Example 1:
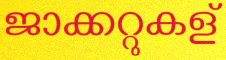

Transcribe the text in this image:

ജാക്കറ്റുകള്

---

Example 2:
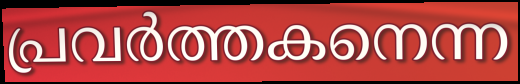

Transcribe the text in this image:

പ്രവർത്തകനെന്ന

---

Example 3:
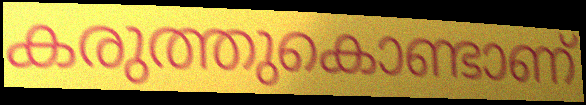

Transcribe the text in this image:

കരുത്തുകൊണ്ടാണ്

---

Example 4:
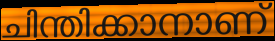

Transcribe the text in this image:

ചിന്തിക്കാനാണ്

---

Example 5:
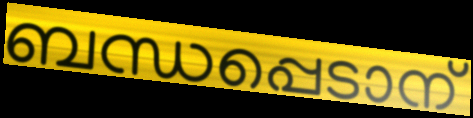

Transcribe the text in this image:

ബന്ധപ്പെടാന്